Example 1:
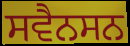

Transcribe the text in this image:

ਸਵੈਨਸਨ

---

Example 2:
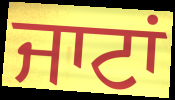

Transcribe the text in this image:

ਜਾਟਾਂ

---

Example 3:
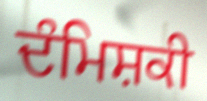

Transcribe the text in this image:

ਦੰਮਿਸ਼ਕੀ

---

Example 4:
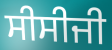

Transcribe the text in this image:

ਸੀਸੀਜੀ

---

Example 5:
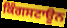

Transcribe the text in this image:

ਕਿੰਗਸਟਾਊਨ